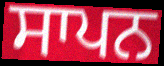
ਸਾਪਨ